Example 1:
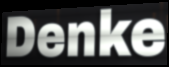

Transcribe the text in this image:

Denke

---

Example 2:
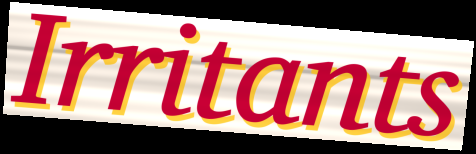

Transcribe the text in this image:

Irritants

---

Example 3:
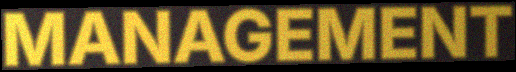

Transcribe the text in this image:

MANAGEMENT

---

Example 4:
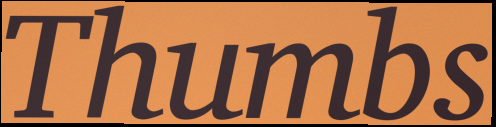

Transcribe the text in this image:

Thumbs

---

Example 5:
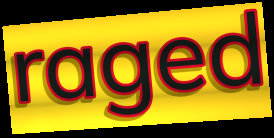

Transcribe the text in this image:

raged